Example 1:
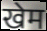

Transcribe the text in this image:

खेम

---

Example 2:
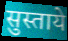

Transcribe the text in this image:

सुस्ताये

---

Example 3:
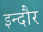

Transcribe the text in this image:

इन्दौर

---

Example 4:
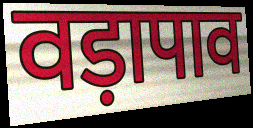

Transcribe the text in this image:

वड़ापाव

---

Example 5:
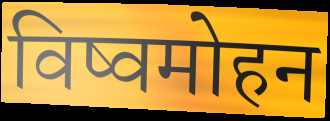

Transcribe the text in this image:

विष्वमोहन